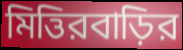
মিত্তিরবাড়ির